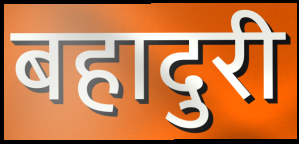
बहादुरी